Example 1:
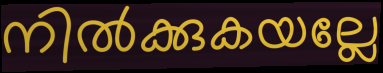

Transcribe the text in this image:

നിൽക്കുകയല്ലേ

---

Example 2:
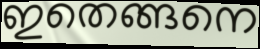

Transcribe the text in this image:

ഇതെങ്ങനെ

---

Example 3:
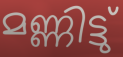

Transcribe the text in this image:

മണ്ണിട്ടു്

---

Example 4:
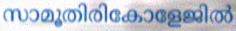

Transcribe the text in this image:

സാമൂതിരികോളേജിൽ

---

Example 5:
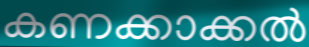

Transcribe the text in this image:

കണക്കാക്കൽ